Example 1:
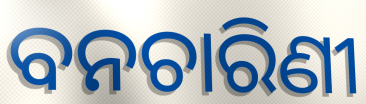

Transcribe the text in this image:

ବନଚାରିଣୀ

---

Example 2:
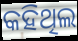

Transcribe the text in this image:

କହିଥିଲ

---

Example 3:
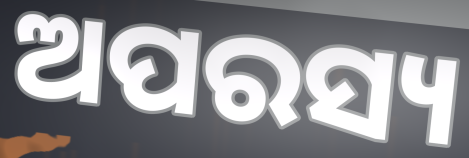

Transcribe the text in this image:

ଅପରସ୍ୟ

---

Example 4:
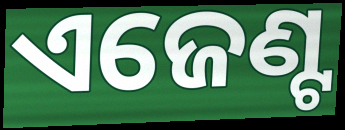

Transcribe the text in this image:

ଏଜେଣ୍ଟ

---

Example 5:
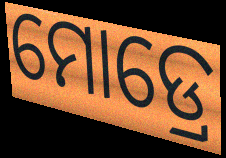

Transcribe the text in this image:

ମୋଡ୍ରେ